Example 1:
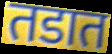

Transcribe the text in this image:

तडात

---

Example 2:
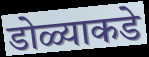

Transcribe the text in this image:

डोळ्याकडे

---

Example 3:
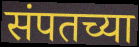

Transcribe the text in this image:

संपतच्या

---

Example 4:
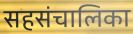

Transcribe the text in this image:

सहसंचालिका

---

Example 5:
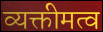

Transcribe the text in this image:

व्यक्तीमत्व